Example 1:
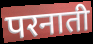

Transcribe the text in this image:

परनाती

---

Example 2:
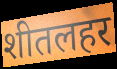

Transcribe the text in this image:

शीतलहर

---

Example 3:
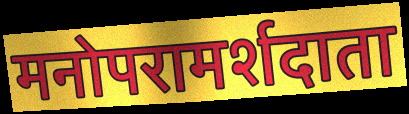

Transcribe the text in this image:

मनोपरामर्शदाता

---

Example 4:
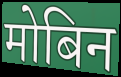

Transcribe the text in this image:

मोबिन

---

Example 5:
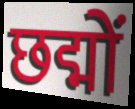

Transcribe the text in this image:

छद्मों